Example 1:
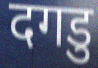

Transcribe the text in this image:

दगडु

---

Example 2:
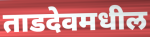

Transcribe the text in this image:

ताडदेवमधील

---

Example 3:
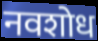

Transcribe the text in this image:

नवशोध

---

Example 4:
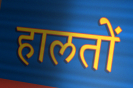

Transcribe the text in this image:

हालतों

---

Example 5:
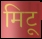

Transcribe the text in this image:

मिटू